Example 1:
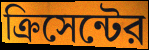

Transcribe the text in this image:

ক্রিসেন্টের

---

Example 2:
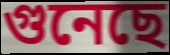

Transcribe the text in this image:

গুনেছে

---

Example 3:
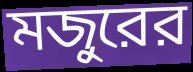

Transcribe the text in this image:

মজুরের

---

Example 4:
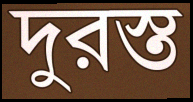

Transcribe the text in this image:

দুরস্ত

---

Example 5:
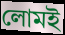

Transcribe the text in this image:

লোমই